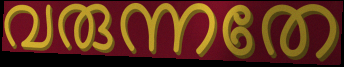
വരുന്നതേ